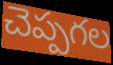
చెప్పగల